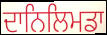
ਦਾਨਿਲਿਮਡਾ